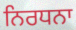
ਨਿਰਧਨਾ